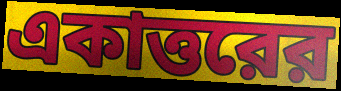
একাত্তরের